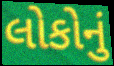
લોકોનું